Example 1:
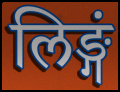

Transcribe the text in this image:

लिङ्गं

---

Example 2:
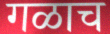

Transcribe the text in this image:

गळाच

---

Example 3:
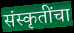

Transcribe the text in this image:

संस्कृतींचा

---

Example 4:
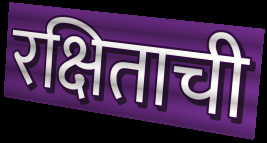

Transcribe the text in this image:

रक्षिताची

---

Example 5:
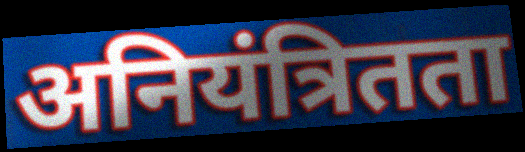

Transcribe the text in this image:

अनियंत्रितता